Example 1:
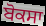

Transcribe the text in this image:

ਬੋਕਸਾ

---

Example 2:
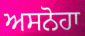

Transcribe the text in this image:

ਅਸਨੋਹਾ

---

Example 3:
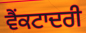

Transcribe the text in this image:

ਵੈਂਕਟਾਦਰੀ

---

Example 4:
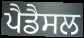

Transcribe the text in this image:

ਪੈਡੈਸਲ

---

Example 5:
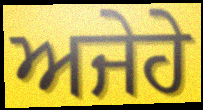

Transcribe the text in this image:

ਅਜੇਹੇ